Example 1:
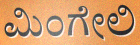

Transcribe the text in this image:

ಮಿಂಗೇಲಿ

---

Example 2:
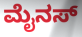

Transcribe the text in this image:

ಮೈನಸ್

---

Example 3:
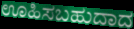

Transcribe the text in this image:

ಊಹಿಸಬಹುದಾದ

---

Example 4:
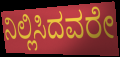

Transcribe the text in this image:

ನಿಲ್ಲಿಸಿದವರೇ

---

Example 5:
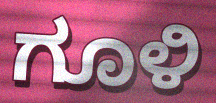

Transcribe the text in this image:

ಗೂಳಿ